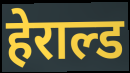
हेराल्ड